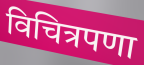
विचित्रपणा